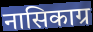
नासिकाग्र